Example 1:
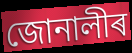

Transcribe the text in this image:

জোনালীৰ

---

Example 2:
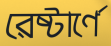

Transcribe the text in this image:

ৱেষ্টাৰ্ণে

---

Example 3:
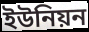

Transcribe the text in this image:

ইউনিয়ন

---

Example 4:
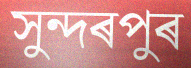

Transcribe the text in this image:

সুন্দৰপুৰ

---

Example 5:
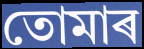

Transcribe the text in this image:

তোমাৰ